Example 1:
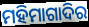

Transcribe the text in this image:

ମହିମାଗାଦିର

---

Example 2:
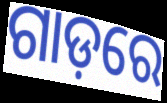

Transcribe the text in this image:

ଗାଡ଼ରେ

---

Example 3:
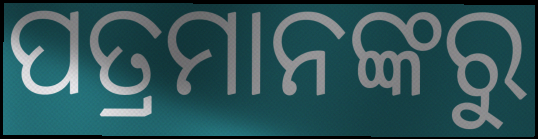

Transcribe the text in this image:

ପତ୍ରମାନଙ୍କରୁ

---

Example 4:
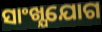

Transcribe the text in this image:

ସାଂଖ୍ଯଯୋଗ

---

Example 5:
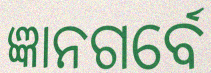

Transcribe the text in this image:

ଜ୍ଞାନଗର୍ବେ